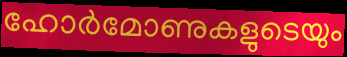
ഹോർമോണുകളുടെയും